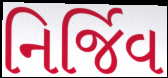
નિર્જિવ